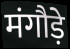
मंगौड़े